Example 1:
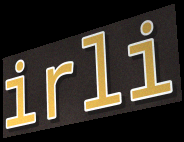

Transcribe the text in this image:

irli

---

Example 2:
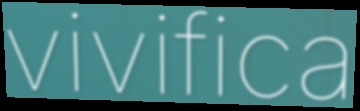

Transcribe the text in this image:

vivifica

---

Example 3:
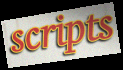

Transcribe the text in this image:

scripts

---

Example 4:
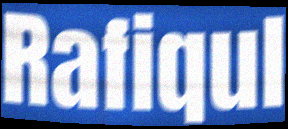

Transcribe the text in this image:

Rafiqul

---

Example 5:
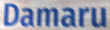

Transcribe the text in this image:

Damaru